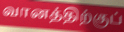
வானத்திற்குப்